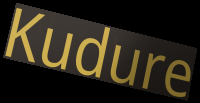
Kudure